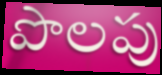
పొలపు